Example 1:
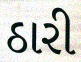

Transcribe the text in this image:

ઠારી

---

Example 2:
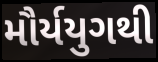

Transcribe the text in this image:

મૌર્યયુગથી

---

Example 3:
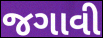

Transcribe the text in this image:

જગાવી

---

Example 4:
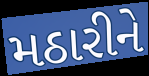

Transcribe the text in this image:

મઠારીને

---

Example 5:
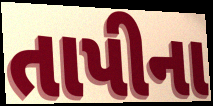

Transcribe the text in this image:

તાપીના